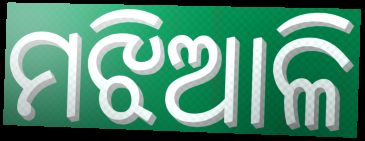
ମଝିଆଳି